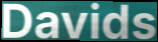
Davids